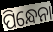
ପିନ୍ଧେନା